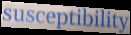
susceptibility